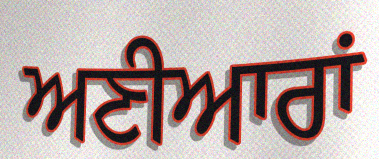
ਅਣੀਆਰਾਂ